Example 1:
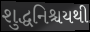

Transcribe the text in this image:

શુદ્ધનિશ્ચયથી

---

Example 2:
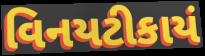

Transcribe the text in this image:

વિનયટીકાયં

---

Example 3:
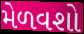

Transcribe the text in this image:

મેળવશો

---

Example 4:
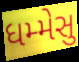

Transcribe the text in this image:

ધમ્મેસુ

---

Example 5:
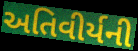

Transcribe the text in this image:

અતિવીર્યની